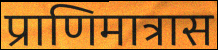
प्राणिमात्रास